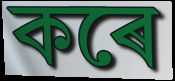
কৰে